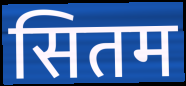
सितम